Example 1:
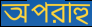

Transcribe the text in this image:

অপরাহু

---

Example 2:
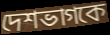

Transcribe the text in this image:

দেশভাগকে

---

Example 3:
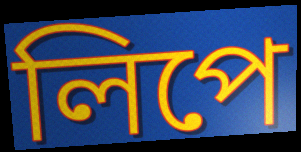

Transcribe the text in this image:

লিপে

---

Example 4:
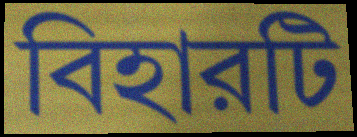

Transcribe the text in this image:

বিহারটি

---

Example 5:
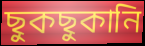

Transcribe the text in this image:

ছুকছুকানি